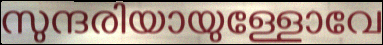
സുന്ദരിയായുള്ളോവേ